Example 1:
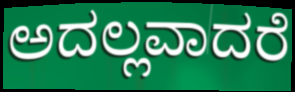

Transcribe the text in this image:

ಅದಲ್ಲವಾದರೆ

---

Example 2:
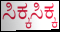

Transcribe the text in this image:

ಸಿಕ್ಕಸಿಕ್ಕ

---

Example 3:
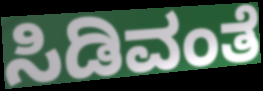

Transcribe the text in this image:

ಸಿಡಿವಂತೆ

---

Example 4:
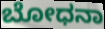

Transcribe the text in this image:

ಬೋಧನಾ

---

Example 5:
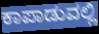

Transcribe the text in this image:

ಕಾಪಾಡುವಲ್ಲಿ